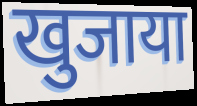
खुजाया